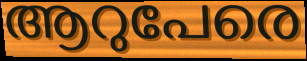
ആറുപേരെ